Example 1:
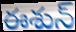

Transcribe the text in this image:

ఈశున్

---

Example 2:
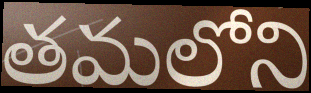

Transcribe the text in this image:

తమలోని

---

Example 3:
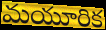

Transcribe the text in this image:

మయూరిక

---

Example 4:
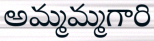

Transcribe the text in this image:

అమ్మమ్మగారి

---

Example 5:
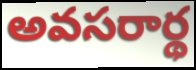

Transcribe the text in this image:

అవసరార్థ